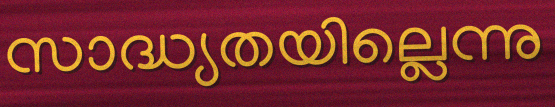
സാദ്ധ്യതയില്ലെന്നു